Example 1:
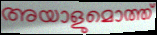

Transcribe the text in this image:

അയാളുമൊത്ത്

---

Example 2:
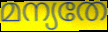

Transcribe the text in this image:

മന്യതേ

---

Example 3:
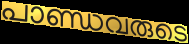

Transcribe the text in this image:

പാണ്ഡവരുടെ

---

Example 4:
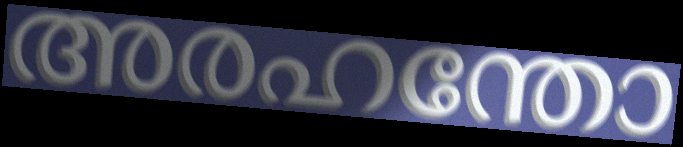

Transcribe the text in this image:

അരഹന്തോ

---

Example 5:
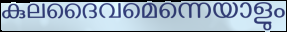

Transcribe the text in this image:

കുലദൈവമെന്നെയാളും